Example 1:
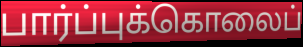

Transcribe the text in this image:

பார்ப்புக்கொலைப்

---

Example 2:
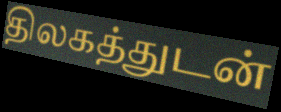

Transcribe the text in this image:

திலகத்துடன்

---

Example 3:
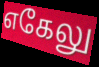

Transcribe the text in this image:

எகேலு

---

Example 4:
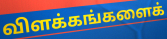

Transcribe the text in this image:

விளக்கங்களைக்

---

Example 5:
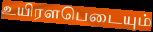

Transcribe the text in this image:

உயிரளபெடையும்